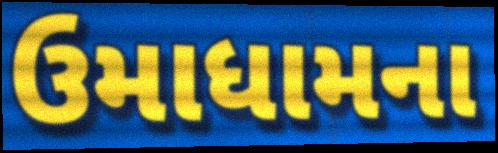
ઉમાધામના